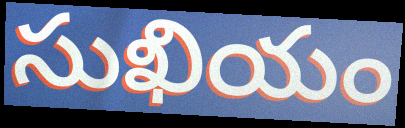
సుఖియం